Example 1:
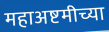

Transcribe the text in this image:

महाअष्टमीच्या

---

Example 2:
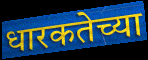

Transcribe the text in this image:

धारकतेच्या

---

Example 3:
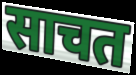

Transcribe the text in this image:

साचत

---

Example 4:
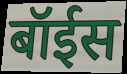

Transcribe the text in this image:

बॉईस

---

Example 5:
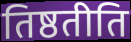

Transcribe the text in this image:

तिष्ठतीति